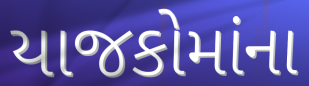
યાજકોમાંના